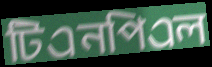
টিএনপিএল